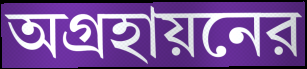
অগ্রহায়নের